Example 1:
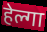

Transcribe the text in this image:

हेल्गा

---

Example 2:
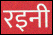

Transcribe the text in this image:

रइनी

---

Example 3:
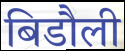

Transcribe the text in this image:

बिडौली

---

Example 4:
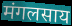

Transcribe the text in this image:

मंगलसाय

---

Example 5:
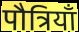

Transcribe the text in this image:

पौत्रियाँ